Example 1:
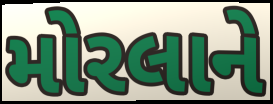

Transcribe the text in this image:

મોરલાને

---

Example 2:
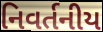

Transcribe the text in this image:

નિવર્તનીય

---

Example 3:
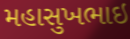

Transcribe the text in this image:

મહાસુખભાઇ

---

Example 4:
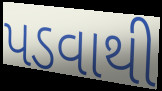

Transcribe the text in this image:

પડવાથી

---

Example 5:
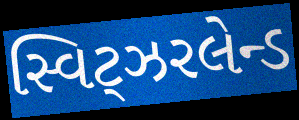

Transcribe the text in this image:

સ્વિટ્ઝરલેન્ડ